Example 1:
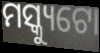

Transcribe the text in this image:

ମସ୍କ୍ୟୁଟୋ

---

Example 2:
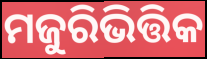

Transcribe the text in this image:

ମଜୁରିଭିତ୍ତିକ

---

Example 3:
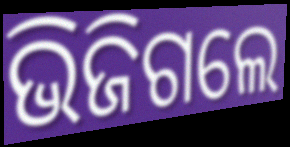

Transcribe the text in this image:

ଭିଜିଗଲେ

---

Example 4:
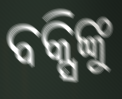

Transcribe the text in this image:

ବକ୍ସିଙ୍କୁ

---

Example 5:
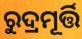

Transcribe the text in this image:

ରୁଦ୍ରମୂର୍ତ୍ତି